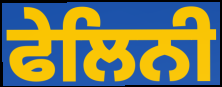
ਫੇਲਿਨੀ